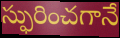
స్ఫురించగానే